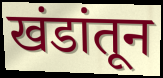
खंडांतून